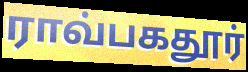
ராவ்பகதூர்